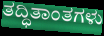
ತದ್ಧಿತಾಂತಗಳು